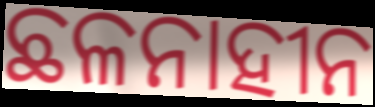
ଛଳନାହୀନ